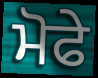
ਮੋਫੇ